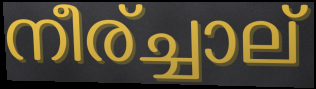
നീര്ച്ചാല്